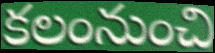
కలంనుంచి